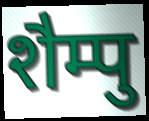
शैम्पु